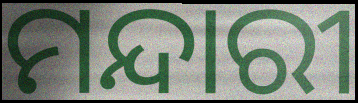
ମନ୍ଦାରୀ